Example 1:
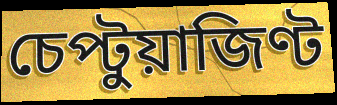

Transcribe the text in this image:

চেপ্টুয়াজিণ্ট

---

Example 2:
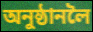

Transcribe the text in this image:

অনুষ্ঠানলৈ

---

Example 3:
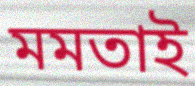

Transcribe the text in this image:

মমতাই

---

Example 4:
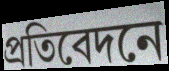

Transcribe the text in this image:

প্ৰতিবেদনে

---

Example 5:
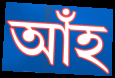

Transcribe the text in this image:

আঁহ